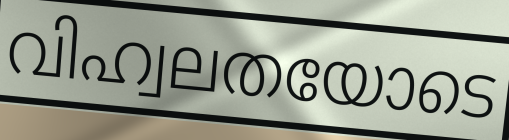
വിഹ്വലതയോടെ